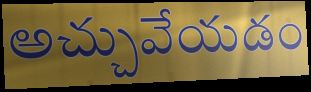
అచ్చువేయడం